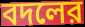
বদলের